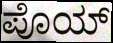
ಪೊಯ್